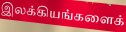
இலக்கியங்களைக்